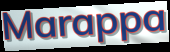
Marappa